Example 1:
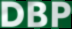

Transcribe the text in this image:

DBP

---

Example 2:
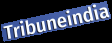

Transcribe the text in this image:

Tribuneindia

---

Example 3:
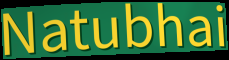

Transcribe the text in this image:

Natubhai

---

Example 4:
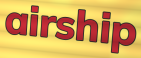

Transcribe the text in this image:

airship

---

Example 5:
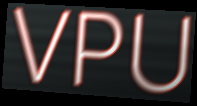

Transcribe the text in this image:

VPU